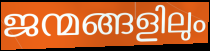
ജന്മങ്ങളിലും